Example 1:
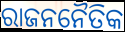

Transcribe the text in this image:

ରାଜନନୈତିକ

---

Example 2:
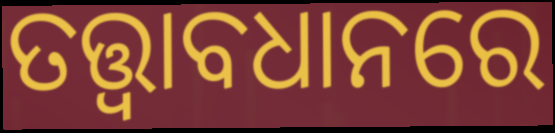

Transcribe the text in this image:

ତତ୍ତ୍ବାବଧାନରେ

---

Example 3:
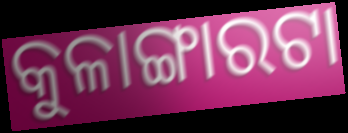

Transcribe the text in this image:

କୁଳାଙ୍ଗାରଟା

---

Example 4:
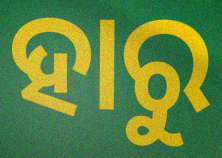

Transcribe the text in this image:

ହାରୁ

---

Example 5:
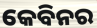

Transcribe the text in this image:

କେବିନର